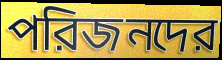
পরিজনদের